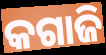
କଗାଜି